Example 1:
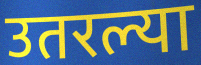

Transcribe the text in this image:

उतरल्या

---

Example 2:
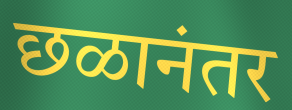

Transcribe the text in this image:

छळानंतर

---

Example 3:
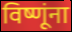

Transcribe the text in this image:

विष्णूंना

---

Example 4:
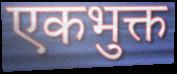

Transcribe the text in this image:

एकभुक्त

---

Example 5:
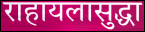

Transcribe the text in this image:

राहायलासुद्धा